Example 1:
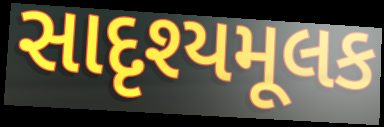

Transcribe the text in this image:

સાદૃશ્યમૂલક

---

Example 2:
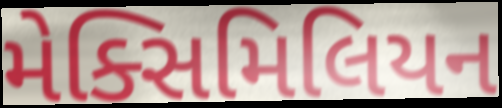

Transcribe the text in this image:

મેક્સિમિલિયન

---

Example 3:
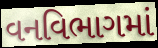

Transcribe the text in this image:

વનવિભાગમાં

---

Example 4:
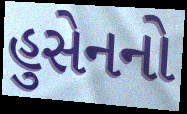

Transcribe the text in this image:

હુસેનનો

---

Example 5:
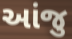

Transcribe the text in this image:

આંજુ